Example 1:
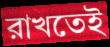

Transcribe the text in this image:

রাখতেই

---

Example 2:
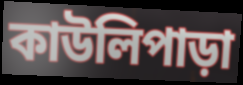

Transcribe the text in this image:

কাউলিপাড়া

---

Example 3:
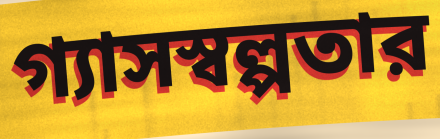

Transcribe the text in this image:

গ্যাসস্বল্পতার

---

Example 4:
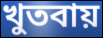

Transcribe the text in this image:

খুতবায়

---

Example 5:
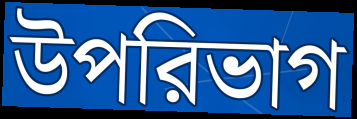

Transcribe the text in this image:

উপরিভাগ